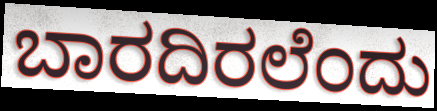
ಬಾರದಿರಲೆಂದು